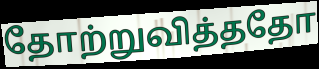
தோற்றுவித்ததோ